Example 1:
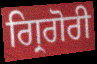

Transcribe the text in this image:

ਗ੍ਰਿਗੋਰੀ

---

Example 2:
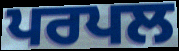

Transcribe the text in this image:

ਪਰਪਲ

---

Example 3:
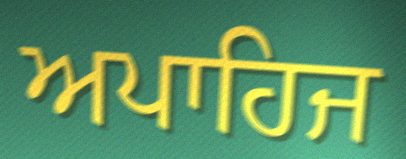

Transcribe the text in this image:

ਅਪਾਹਿਜ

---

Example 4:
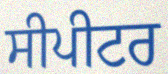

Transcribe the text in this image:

ਸੀਪੀਟਰ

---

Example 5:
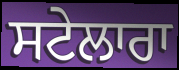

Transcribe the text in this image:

ਸਟੇਲਾਰਾ